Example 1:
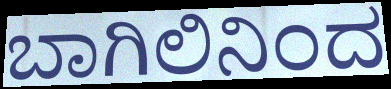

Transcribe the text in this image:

ಬಾಗಿಲಿನಿಂದ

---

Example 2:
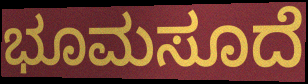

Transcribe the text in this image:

ಭೂಮಸೂದೆ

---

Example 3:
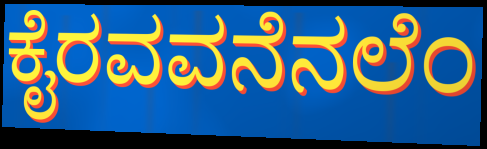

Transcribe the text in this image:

ಕೈರವವನೆನಲೆಂ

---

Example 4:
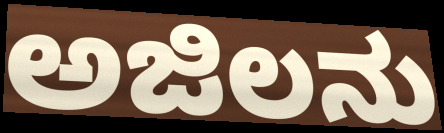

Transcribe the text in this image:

ಅಜಿಲನು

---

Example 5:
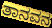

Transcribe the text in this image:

ತಾನವನ